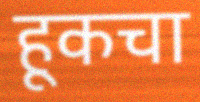
हूकचा